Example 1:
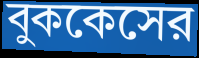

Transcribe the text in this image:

বুককেসের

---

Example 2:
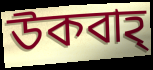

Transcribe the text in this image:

উকবাহ্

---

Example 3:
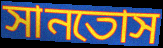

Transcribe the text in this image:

সানতোস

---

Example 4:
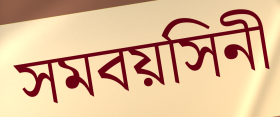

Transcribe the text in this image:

সমবয়সিনী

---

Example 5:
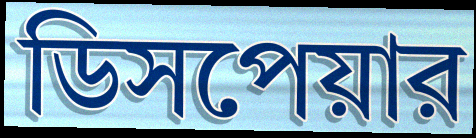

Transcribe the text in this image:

ডিসপেয়ার